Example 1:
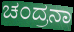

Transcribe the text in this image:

ಚಂದ್ರನಾ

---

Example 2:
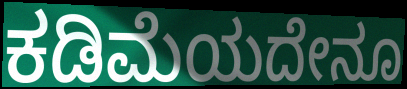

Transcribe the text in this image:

ಕಡಿಮೆಯದೇನೂ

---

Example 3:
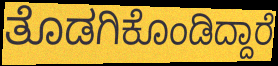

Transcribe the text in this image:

ತೊಡಗಿಕೊಂಡಿದ್ದಾರೆ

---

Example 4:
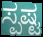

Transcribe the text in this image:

ಸ್ಪಷ್ಟ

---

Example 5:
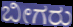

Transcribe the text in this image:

ಬೀಗರು